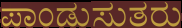
ಪಾಂಡುಸುತರು